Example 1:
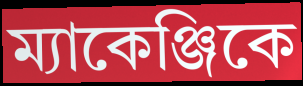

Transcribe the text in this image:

ম্যাকেঞ্জিকে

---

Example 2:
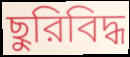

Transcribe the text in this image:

ছুরিবিদ্ধ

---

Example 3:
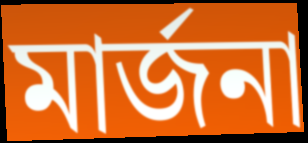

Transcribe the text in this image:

মার্জনা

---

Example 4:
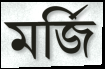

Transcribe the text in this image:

মর্জি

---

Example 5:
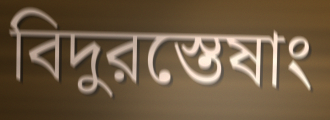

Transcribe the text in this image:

বিদুরস্তেষাং